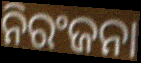
ନିରଂଜନା